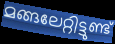
മങ്ങലേറ്റിട്ടുണ്ട്